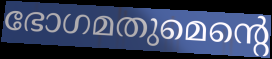
ഭോഗമതുമെന്റെ